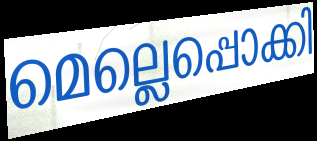
മെല്ലെപ്പൊക്കി